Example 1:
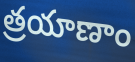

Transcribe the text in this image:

త్రయాణాం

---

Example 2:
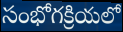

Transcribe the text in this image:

సంభోగక్రియలో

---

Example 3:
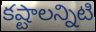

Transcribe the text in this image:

కష్టాలన్నిటి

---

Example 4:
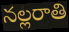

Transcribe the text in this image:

నల్లరాతి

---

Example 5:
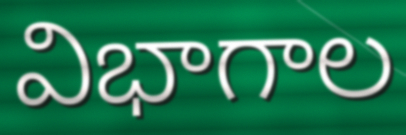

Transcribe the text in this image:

విభాగాల